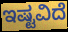
ಇಷ್ಟವಿದೆ